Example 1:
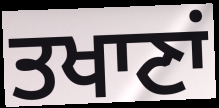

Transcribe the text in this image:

ਤਖਾਣਾਂ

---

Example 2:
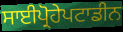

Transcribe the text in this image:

ਸਾਈਪ੍ਰੋਹੇਪਟਾਡੀਨ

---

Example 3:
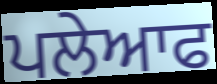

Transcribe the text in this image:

ਪਲੇਆਫ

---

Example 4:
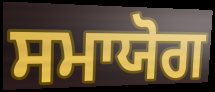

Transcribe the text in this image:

ਸਮਾਯੋਗ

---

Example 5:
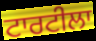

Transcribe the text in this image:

ਟਾਰਟੀਲਾ